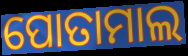
ପୋତାମାଲ